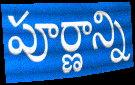
పూర్ణాన్ని